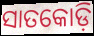
ସାତକୋଡ଼ି